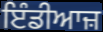
ਇੰਡੀਆਜ਼